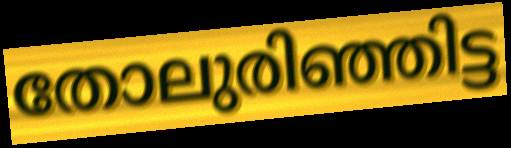
തോലുരിഞ്ഞിട്ട